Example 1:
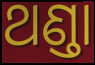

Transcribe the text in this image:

ଥଣ୍ଡା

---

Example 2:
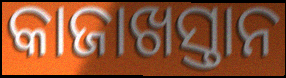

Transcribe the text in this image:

କାଜାଖସ୍ତାନ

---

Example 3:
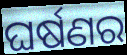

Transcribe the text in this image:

ଘର୍ଷଣର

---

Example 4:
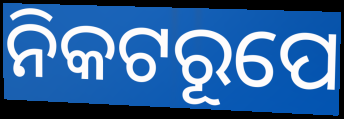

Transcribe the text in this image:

ନିକଟରୂପେ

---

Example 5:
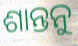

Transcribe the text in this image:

ଶାନ୍ତନୁ